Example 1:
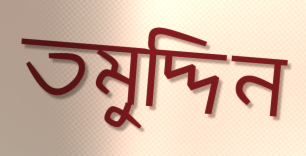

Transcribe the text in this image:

তমুদ্দিন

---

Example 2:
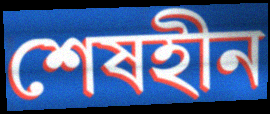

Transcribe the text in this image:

শেষহীন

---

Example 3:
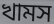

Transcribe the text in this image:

খামস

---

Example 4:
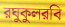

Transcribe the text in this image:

রঘুকুলরবি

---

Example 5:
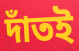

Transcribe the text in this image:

দাঁতই